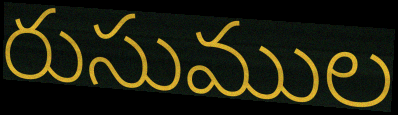
రుసుముల